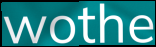
wothe